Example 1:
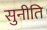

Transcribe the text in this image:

सुनीति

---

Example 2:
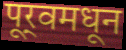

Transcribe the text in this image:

पूर्वमधून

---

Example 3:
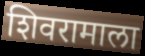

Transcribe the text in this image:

शिवरामाला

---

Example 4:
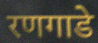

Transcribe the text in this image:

रणगाडे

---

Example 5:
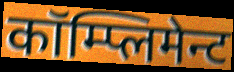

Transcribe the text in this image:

कॉम्प्लिमेन्ट